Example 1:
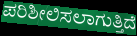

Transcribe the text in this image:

ಪರಿಶೀಲಿಸಲಾಗುತ್ತಿದೆ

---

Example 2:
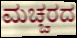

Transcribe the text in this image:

ಮಚ್ಚರದ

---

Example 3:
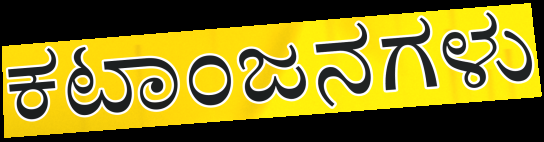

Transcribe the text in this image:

ಕಟಾಂಜನಗಳು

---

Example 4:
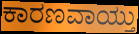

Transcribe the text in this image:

ಕಾರಣವಾಯ್ತು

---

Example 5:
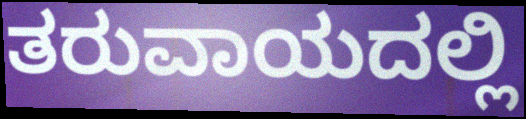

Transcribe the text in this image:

ತರುವಾಯದಲ್ಲಿ